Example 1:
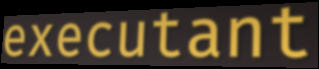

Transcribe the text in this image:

executant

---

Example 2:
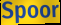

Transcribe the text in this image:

Spoor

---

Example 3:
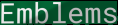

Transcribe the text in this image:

Emblems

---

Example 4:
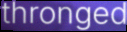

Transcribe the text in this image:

thronged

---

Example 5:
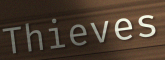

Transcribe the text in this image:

Thieves